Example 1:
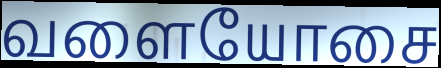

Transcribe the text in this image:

வளையோசை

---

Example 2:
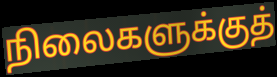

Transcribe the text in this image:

நிலைகளுக்குத்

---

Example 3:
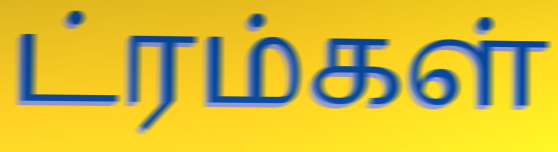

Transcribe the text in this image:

ட்ரம்கள்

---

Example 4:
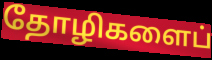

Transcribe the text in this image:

தோழிகளைப்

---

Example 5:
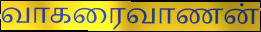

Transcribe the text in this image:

வாகரைவாணன்